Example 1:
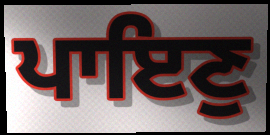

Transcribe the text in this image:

ਪਾਇਣੁ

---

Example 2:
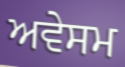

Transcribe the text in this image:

ਅਵੇਸਮ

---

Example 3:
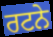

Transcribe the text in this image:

ਰਟਨੇ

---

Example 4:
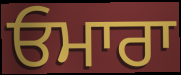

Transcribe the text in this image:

ਓਮਾਰਾ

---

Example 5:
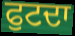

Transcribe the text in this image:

ਫੁਟਦਾ